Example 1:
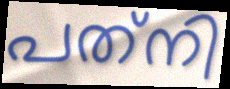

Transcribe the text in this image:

പത്‌നി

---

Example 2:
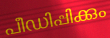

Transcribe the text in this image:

പീഡിപ്പിക്കും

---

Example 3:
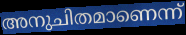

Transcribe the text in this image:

അനുചിതമാണെന്ന്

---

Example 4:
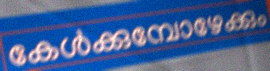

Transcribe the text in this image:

കേൾക്കുമ്പോഴേക്കും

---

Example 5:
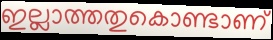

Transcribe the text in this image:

ഇല്ലാത്തതുകൊണ്ടാണ്